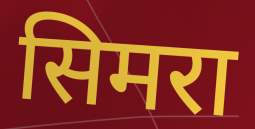
सिमरा